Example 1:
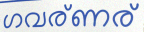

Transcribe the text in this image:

ഗവര്ണര്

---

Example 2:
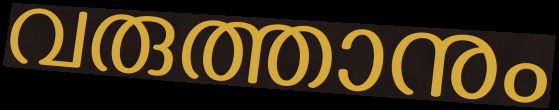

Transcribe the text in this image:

വരുത്താനും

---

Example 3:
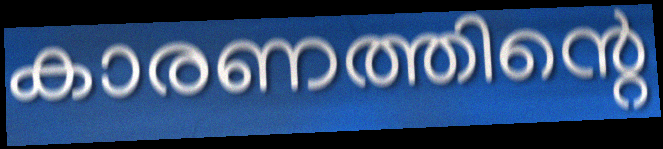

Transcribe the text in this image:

കാരണത്തിന്റെ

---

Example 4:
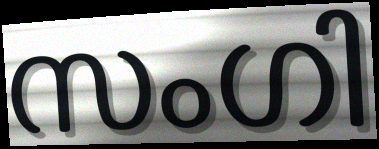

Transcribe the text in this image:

സംഗി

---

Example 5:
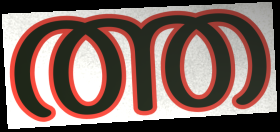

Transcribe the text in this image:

ത്ത